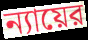
ন্যায়ের